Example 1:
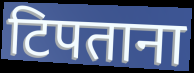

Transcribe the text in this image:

टिपताना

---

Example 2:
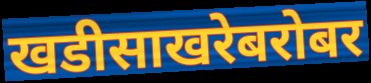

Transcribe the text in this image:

खडीसाखरेबरोबर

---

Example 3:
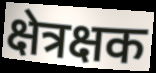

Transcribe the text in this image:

क्षेत्रक्षक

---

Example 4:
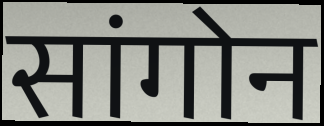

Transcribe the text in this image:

सांगोन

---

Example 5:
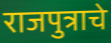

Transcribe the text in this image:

राजपुत्राचे